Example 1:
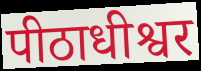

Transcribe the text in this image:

पीठाधीश्वर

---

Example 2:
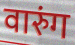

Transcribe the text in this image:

वारुंग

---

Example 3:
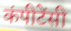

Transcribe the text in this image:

कंपीटेंसी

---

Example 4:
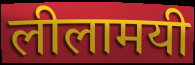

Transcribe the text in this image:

लीलामयी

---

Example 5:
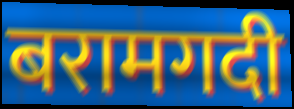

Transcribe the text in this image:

बरामगदी